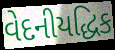
વેદનીયદ્ધિક